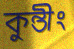
কুন্তীং